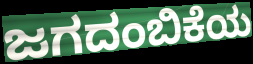
ಜಗದಂಬಿಕೆಯ